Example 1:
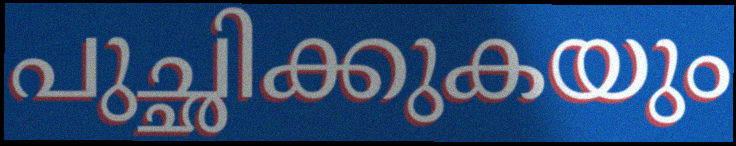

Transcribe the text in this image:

പുച്ഛിക്കുകയും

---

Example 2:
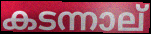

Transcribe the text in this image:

കടന്നാല്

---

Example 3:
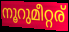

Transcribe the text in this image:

നൂറുമീറ്റര്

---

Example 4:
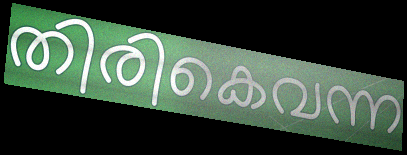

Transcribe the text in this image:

തിരികെവന്ന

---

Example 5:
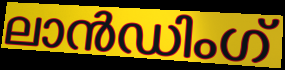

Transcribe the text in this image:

ലാൻഡിംഗ്